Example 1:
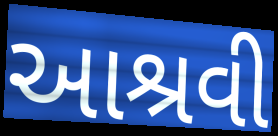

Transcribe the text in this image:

આશ્રવી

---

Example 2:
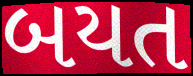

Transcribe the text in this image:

બયત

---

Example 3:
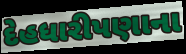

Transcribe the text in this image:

દેહધારીપણાના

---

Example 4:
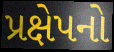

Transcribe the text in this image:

પ્રક્ષેપનો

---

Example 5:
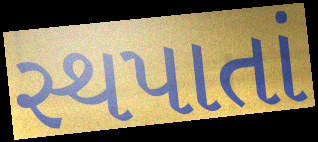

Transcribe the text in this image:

સ્થપાતાં